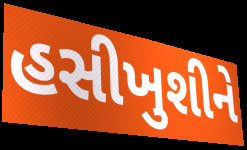
હસીખુશીને